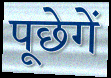
पूछेगें